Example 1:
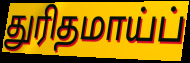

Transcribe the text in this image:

துரிதமாய்ப்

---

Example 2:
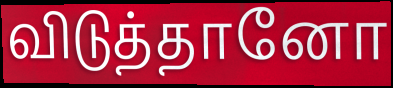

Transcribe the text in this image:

விடுத்தானோ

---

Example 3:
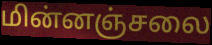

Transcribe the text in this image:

மின்னஞ்சலை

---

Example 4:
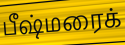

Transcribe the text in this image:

பீஷ்மரைக்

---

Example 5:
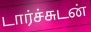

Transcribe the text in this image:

டார்ச்சுடன்